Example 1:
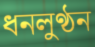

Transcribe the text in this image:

ধনলুণ্ঠন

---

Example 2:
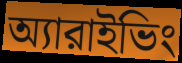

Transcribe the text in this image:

অ্যারাইভিং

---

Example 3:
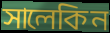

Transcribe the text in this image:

সালেকিন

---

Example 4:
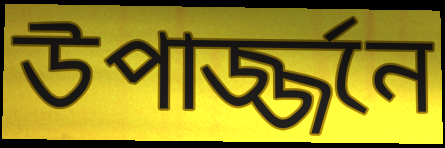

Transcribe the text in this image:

উপার্জ্জনে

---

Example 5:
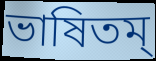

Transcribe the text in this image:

ভাষিতম্